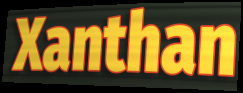
Xanthan